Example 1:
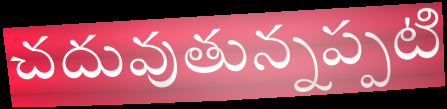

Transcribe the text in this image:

చదువుతున్నప్పటి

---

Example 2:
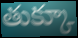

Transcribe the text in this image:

తుక్కూ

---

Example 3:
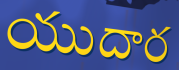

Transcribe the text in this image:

యుదార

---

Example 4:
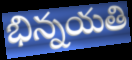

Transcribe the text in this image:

భిన్నయతి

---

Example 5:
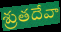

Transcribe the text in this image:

శ్రుతదేవా